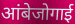
आंबेजोगाई